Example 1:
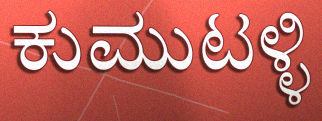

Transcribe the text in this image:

ಕುಮುಟಳ್ಳಿ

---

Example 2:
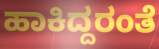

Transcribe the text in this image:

ಹಾಕಿದ್ದರಂತೆ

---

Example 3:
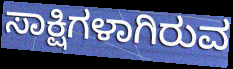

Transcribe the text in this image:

ಸಾಕ್ಷಿಗಳಾಗಿರುವ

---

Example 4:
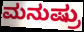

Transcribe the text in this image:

ಮನುಷ್ರು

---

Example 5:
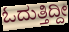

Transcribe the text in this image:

ಓದುತ್ತಿದ್ದೀ